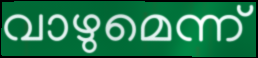
വാഴുമെന്ന്